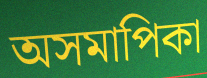
অসমাপিকা